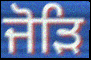
ਜੋੜਿ